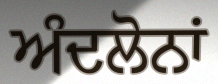
ਅੰਦਲੋਨਾਂ